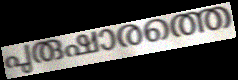
പുരുഷാരത്തെ